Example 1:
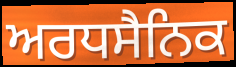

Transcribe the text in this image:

ਅਰਧਸੈਨਿਕ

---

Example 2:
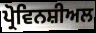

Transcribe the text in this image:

ਪ੍ਰੋਵਿਨਸ਼ੀਅਲ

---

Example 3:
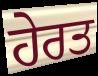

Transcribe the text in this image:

ਹੇਰਤ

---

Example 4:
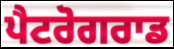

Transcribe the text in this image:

ਪੈਟਰੋਗਰਾਡ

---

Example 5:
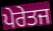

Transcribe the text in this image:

ਪੇਰੇਤਜ